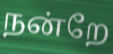
நன்றே